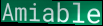
Amiable